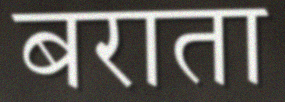
बराता